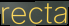
recta